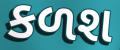
કળશ